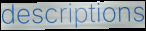
descriptions